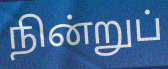
நின்றுப்